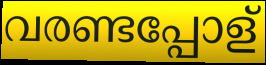
വരണ്ടപ്പോള്